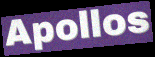
Apollos